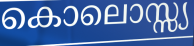
കൊലൊസ്സ്യ